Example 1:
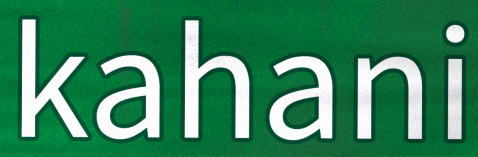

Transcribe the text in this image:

kahani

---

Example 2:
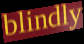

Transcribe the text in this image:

blindly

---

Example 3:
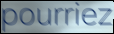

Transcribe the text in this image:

pourriez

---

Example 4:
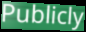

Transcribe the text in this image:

Publicly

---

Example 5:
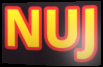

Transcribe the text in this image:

NUJ